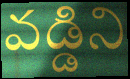
వడ్డిని